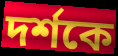
দৰ্শকে